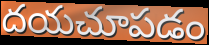
దయచూపడం